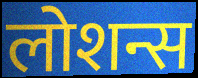
लोशन्स